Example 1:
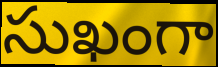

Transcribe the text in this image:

సుఖంగా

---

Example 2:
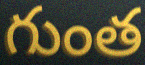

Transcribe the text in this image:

గుంత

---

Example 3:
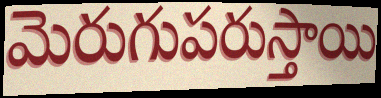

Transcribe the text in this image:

మెరుగుపరుస్తాయి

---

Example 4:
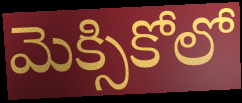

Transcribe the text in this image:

మెక్సికోలో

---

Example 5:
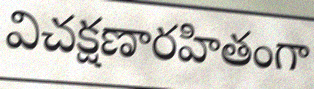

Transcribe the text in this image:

విచక్షణారహితంగా